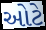
ઓટે